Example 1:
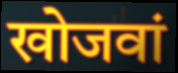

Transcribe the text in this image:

खोजवां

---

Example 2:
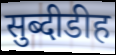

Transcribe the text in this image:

सुब्दीडीह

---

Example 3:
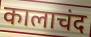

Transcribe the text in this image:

कालाचंद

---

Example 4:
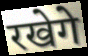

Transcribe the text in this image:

रखेगे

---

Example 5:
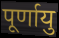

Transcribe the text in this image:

पूर्णायु